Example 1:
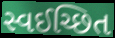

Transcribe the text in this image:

સ્વઈચ્છિત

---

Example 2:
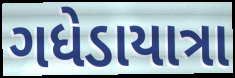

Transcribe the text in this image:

ગધેડાયાત્રા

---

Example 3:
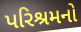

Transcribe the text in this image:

પરિશ્રમનો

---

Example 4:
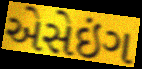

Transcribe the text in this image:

એસેઇંગ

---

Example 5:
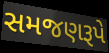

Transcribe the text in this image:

સમજણરૂપે